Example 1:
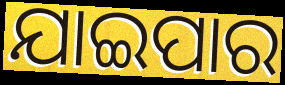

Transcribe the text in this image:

ଯାଇପାର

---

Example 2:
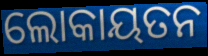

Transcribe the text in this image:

ଲୋକାୟତନ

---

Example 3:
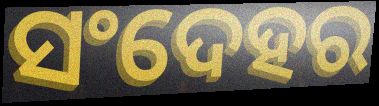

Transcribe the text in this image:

ସଂଦେହର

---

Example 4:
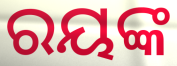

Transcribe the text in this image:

ରୟଙ୍କ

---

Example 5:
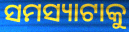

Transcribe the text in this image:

ସମସ୍ୟାଟାକୁ